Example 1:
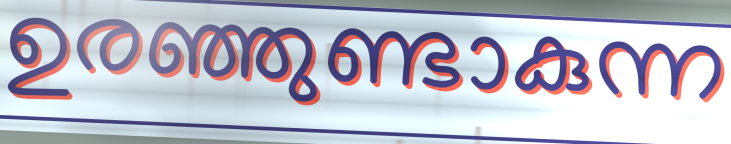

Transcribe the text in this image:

ഉരഞ്ഞുണ്ടാകുന്ന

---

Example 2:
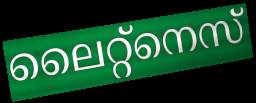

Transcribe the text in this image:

ലൈറ്റ്നെസ്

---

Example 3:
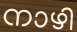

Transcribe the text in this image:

നാഴി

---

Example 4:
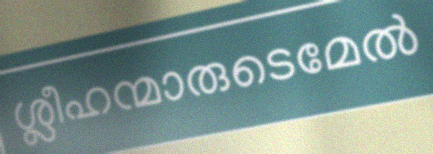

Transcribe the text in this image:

ശ്ലീഹന്മാരുടെമേൽ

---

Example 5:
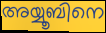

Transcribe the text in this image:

അയ്യൂബിനെ